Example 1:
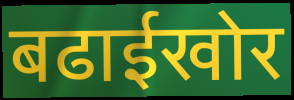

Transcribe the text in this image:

बढाईखोर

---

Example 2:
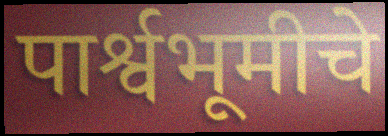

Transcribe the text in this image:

पार्श्वभूमीचे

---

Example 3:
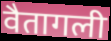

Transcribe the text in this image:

वैतागली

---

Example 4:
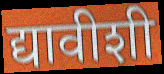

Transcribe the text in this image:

द्यावीशी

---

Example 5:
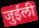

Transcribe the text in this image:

जुईली